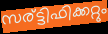
സര്ട്ടിഫിക്കറ്റും